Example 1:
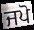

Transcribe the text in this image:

ਜਪੋ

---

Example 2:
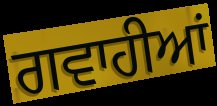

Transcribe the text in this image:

ਗਵਾਹੀਆਂ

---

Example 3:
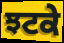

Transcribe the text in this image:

ਝਟਕੇ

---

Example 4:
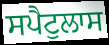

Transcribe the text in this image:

ਸਪੈਟੁਲਾਸ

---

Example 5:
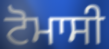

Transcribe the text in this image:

ਟੋਮਾਸੀ